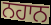
ਨਹਾਨ